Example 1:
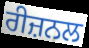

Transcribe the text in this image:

ਰੀਜ਼ਨਲ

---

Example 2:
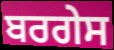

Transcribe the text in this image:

ਬਰਗੇਸ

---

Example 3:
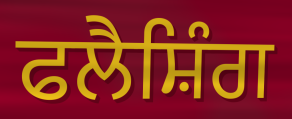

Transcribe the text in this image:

ਫਲੈਸ਼ਿੰਗ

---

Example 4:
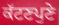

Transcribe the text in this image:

ਕੱਟਣਪੁਣੇ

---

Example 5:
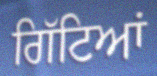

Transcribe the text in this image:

ਗਿੱਟਿਆਂ